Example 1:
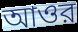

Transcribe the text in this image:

আওর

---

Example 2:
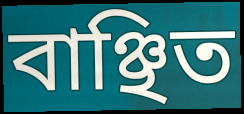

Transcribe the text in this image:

বাঞ্ছিত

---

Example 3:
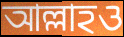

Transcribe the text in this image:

আল্লাহও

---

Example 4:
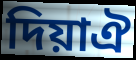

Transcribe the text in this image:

দিয়াঐ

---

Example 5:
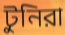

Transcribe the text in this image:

টুনিরা